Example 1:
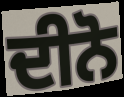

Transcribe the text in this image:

ਦੀਨੋ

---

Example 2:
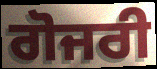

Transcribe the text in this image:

ਗੋਜਰੀ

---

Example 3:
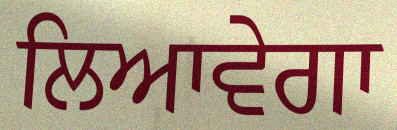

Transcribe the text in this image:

ਲਿਆਵੇਗਾ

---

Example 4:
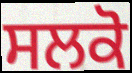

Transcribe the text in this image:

ਸਲਕੋ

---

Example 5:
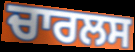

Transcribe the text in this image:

ਚਾਰਲਸ